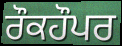
ਰੌਕਹੌਪਰ